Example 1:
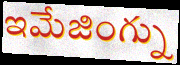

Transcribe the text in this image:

ఇమేజింగ్ను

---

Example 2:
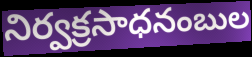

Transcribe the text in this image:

నిర్వక్రసాధనంబుల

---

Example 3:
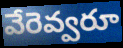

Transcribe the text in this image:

వేరెవ్వరూ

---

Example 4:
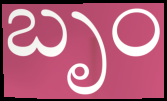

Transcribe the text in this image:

బృం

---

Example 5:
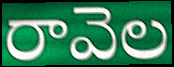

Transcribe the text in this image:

రావెల